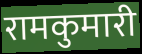
रामकुमारी